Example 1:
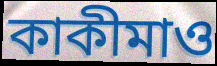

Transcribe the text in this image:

কাকীমাও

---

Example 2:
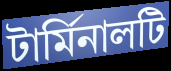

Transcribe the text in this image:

টার্মিনালটি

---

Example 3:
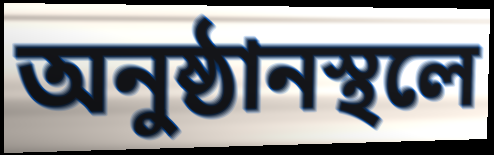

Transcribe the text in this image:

অনুষ্ঠানস্থলে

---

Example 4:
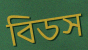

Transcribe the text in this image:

বিডস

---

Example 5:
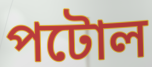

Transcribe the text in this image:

পটোল